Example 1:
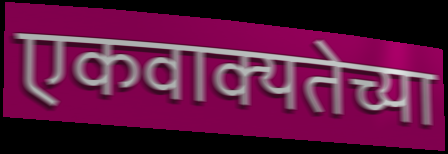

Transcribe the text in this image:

एकवाक्यतेच्या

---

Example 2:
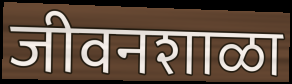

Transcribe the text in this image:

जीवनशाळा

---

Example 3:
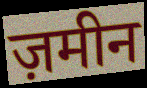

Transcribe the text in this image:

ज़मीन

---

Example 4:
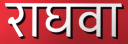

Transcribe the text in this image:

राघवा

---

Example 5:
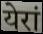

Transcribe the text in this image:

येरां